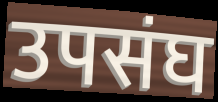
उपसंघ